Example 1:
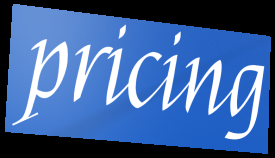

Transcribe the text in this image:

pricing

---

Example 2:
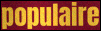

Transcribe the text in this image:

populaire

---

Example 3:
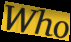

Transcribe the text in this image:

Who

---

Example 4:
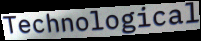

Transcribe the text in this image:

Technological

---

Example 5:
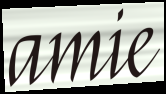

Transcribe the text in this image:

amie